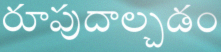
రూపుదాల్చడం